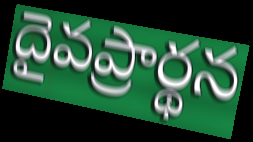
దైవప్రార్థన